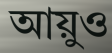
আয়ুও